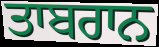
ਤਾਬਰਾਨ